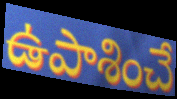
ఉపాశించే